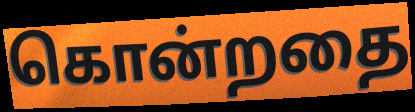
கொன்றதை